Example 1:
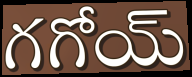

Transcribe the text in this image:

గగోయ్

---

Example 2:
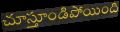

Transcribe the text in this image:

చూస్తూండిపోయింది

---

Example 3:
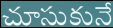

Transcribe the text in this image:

చూసుకునే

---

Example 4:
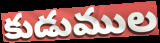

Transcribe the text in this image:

కుడుముల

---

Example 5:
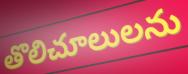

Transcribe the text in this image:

తొలిచూలులను